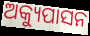
ଅକ୍ୟୁପାସନ